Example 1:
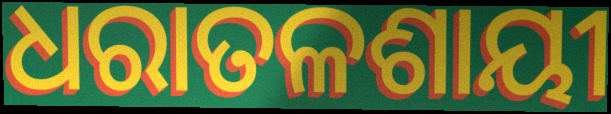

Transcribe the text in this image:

ଧରାତଳଶାୟୀ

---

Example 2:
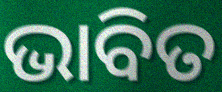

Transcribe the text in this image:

ଭାବିତ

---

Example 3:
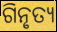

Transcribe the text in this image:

ଗିନୃତ୍ୟ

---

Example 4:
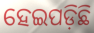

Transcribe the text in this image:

ହେଇପଡ଼ିଛି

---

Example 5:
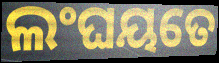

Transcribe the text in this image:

ଲଂଘୟତେ